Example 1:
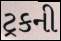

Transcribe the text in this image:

ટ્રકની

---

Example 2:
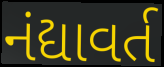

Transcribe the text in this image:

નંદ્યાવર્ત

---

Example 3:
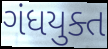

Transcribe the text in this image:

ગંધયુક્ત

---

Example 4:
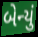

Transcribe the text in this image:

બેન્યું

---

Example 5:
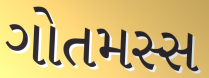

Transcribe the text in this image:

ગોતમસ્સ